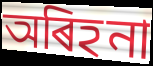
অৰিহনা